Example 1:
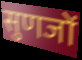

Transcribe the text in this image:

सुणजों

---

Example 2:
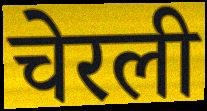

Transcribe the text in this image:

चेरली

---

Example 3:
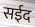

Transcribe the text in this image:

सईद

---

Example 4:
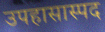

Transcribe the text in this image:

उपहासास्पद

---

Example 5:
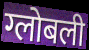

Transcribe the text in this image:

ग्लोबली